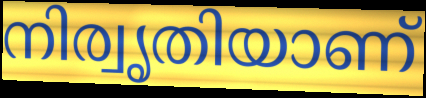
നിര്വൃതിയാണ്